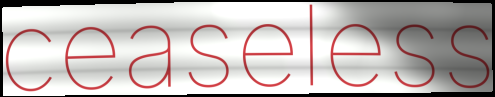
ceaseless